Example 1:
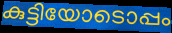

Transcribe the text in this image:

കുട്ടിയോടൊപ്പം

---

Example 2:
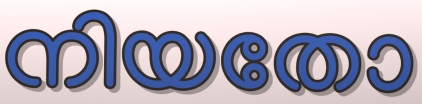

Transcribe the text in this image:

നിയതോ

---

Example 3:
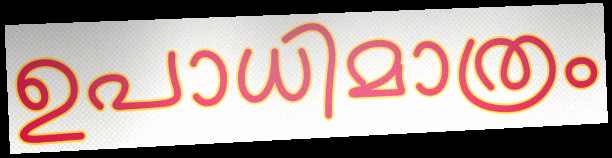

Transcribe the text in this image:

ഉപാധിമാത്രം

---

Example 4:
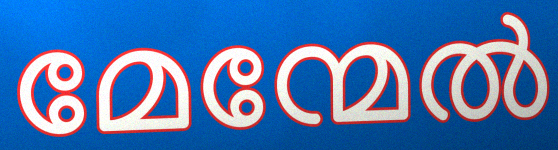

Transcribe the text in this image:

മേന്മേൽ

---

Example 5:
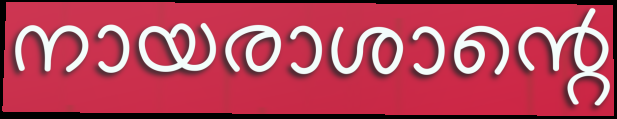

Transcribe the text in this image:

നായരാശാന്റെ